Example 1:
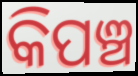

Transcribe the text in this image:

କିପଞ୍ଚ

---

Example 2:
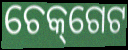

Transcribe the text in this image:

ଚେକ୍‌ଗେଟ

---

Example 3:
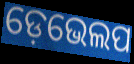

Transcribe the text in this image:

ଡ଼େଭେଲପ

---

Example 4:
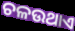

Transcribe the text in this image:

ଚଳଉଥାଏ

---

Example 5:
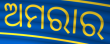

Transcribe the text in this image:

ଅମରାର